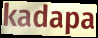
kadapa